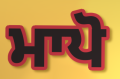
ਮਾਪੋ